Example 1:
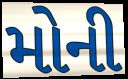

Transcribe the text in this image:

મોની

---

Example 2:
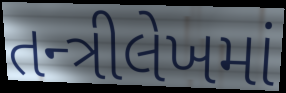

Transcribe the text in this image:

તન્ત્રીલેખમાં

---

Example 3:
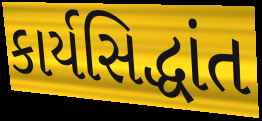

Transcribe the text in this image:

કાર્યસિદ્ધાંત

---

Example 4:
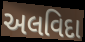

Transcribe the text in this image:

અલવિદા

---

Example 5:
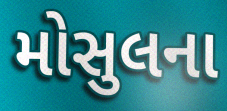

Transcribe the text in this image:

મોસુલના